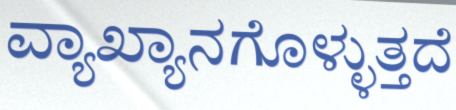
ವ್ಯಾಖ್ಯಾನಗೊಳ್ಳುತ್ತದೆ